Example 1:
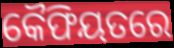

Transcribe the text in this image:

କୈଫିୟତରେ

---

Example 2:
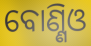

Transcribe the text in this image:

ବୋଣ୍ଣିଓ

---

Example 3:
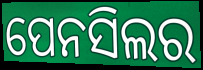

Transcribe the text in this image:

ପେନସିଲର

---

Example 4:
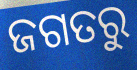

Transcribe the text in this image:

ଜଗତରୁ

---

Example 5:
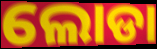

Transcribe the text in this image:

ଲୋଡା